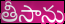
తీసాను